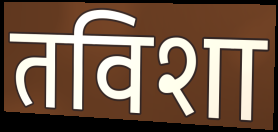
तविशा